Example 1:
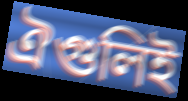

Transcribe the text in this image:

ঐগুলিই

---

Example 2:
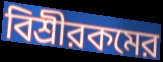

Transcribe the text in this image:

বিশ্রীরকমের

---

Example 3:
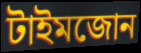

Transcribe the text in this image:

টাইমজোন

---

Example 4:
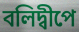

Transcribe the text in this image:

বলিদ্বীপে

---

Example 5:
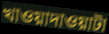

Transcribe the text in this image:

খাওয়াদাওয়াটা